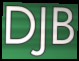
DJB